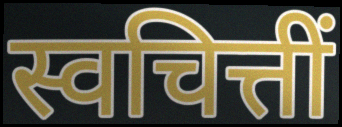
स्वचित्तीं